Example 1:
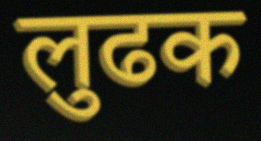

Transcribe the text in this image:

लुढक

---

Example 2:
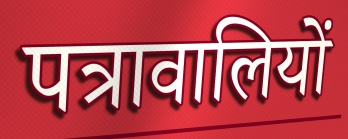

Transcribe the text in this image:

पत्रावालियों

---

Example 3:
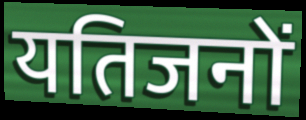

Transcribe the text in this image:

यतिजनों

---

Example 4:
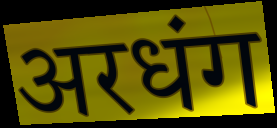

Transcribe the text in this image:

अरधंग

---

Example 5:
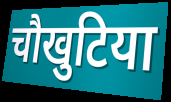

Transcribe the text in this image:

चौखुटिया